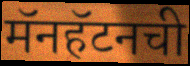
मॅनहॅटनची